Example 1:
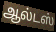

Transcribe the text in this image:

ஆல்டஸ்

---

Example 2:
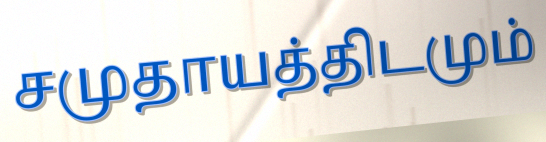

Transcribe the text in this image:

சமுதாயத்திடமும்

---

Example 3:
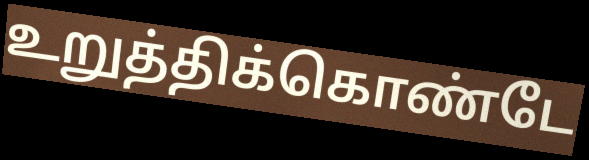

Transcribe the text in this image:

உறுத்திக்கொண்டே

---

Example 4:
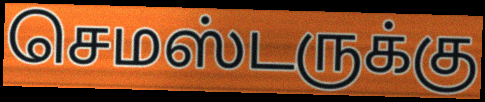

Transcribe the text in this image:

செமஸ்டருக்கு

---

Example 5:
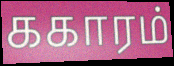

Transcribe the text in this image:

ககாரம்